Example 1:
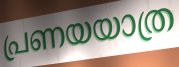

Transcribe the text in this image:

പ്രണയയാത്ര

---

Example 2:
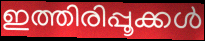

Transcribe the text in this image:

ഇത്തിരിപ്പൂക്കൾ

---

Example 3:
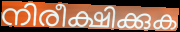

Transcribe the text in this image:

നിരീക്ഷിക്കുക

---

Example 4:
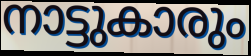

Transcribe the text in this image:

നാട്ടുകാരും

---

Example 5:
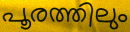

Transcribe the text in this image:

പൂരത്തിലും